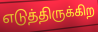
எடுத்திருக்கிற